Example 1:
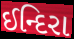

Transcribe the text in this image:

ઈન્દિરા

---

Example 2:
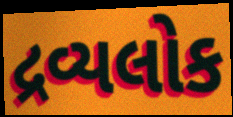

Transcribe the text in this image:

દ્રવ્યલોક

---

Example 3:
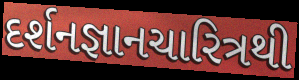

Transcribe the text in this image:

દર્શનજ્ઞાનચારિત્રથી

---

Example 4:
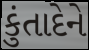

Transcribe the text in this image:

કુંતાદેને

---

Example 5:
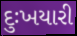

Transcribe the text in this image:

દુઃખયારી